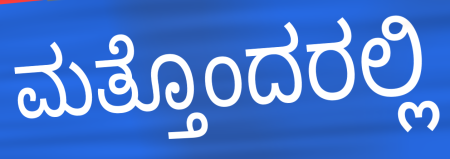
ಮತ್ತೊಂದರಲ್ಲಿ